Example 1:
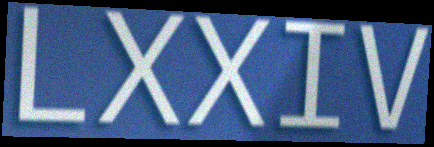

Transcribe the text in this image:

LXXIV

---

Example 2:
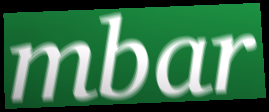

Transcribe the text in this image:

mbar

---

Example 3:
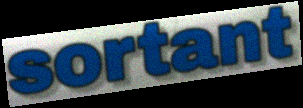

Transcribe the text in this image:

sortant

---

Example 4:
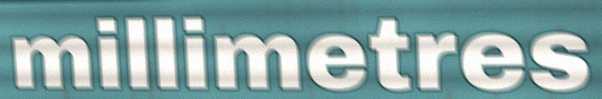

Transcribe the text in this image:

millimetres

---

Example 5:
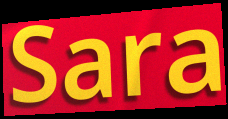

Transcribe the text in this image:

Sara